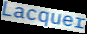
Lacquer